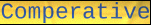
Comperative